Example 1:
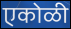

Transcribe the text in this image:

एकोळी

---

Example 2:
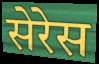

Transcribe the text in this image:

सेरेस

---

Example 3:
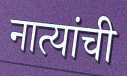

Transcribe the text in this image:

नात्यांची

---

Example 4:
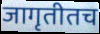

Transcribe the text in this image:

जागृतीतच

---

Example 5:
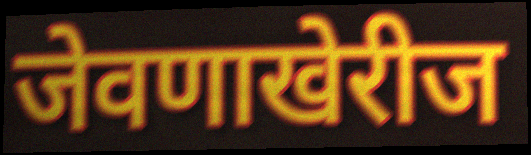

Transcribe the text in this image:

जेवणाखेरीज